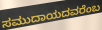
ಸಮುದಾಯದವರೆಂಬ